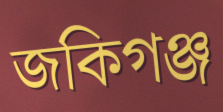
জকিগঞ্জ